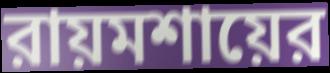
রায়মশায়ের